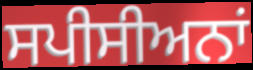
ਸਪੀਸੀਅਨਾਂ